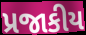
પ્રજાકીય